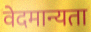
वेदमान्यता